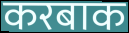
करबाक